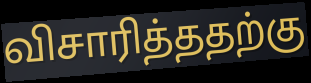
விசாரித்ததற்கு